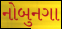
નોબુનગા